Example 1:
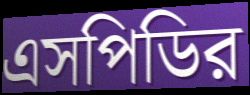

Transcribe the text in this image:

এসপিডির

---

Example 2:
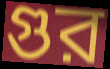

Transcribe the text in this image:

গুর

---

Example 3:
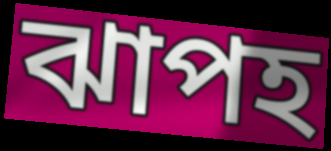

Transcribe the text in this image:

ঝাপহ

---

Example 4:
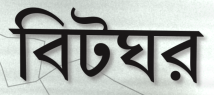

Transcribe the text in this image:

বিটঘর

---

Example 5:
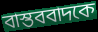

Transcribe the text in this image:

বাস্তববাদকে